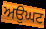
ਅਉਘਟ